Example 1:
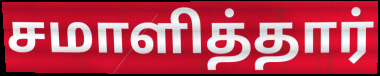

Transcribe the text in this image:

சமாளித்தார்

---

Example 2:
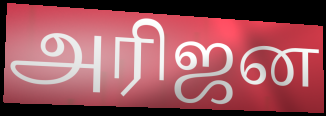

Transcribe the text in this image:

அரிஜன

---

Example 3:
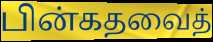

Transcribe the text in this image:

பின்கதவைத்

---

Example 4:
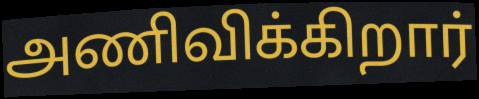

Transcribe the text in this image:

அணிவிக்கிறார்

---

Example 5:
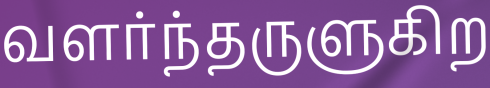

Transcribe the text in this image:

வளர்ந்தருளுகிற